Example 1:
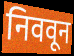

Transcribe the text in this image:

निववून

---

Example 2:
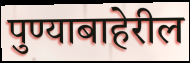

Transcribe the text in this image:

पुण्याबाहेरील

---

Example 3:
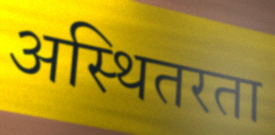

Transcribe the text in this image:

अस्थितरता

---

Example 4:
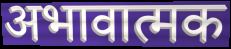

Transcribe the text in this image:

अभावात्मक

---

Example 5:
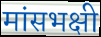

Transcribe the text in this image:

मांसभक्षी